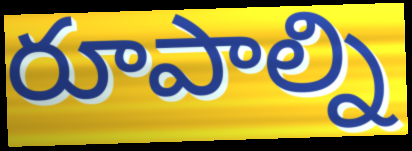
రూపాల్ని